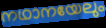
നഥാനയേലും